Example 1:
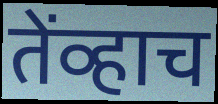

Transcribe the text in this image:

तेंव्हाच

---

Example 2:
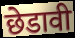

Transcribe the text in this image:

छेडावी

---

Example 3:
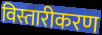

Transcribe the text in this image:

विस्तारीकरण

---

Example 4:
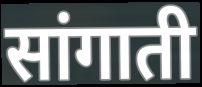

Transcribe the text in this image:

सांगाती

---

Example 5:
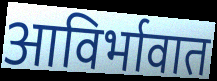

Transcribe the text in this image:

आविर्भावात